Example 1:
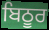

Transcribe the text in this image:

ਬਿਠੂਰ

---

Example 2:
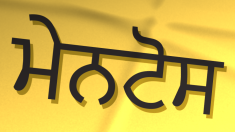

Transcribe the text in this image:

ਮੇਨਟੋਸ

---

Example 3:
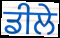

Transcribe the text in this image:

ਡੀਲੇ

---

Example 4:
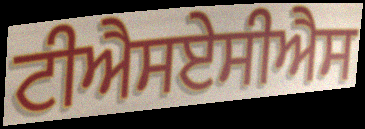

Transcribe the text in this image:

ਟੀਐਸਏਸੀਐਸ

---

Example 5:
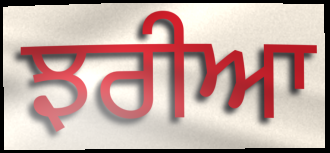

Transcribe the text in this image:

ਝਰੀਆ